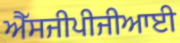
ਐੱਸਜੀਪੀਜੀਆਈ